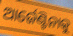
ଆର୍ଜେଣ୍ଟିନାକୁ